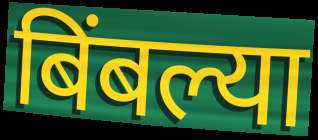
बिंबल्या